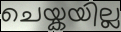
ചെയ്കയില്ല